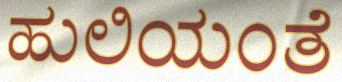
ಹುಲಿಯಂತೆ